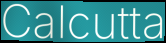
Calcutta